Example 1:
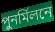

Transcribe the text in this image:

পুনর্মিলনে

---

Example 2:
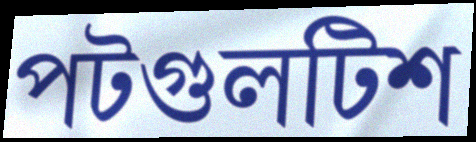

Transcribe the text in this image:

পটগুলটিশ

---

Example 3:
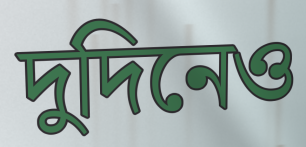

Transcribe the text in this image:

দুদিনেও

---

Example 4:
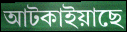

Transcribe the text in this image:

আটকাইয়াছে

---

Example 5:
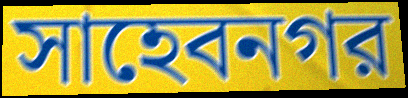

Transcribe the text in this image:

সাহেবনগর